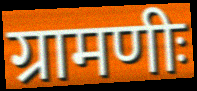
ग्रामणीः